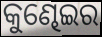
କୁଣ୍ଢେଇର